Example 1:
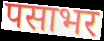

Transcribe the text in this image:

पसाभर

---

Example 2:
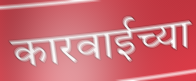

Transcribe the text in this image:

कारवाईच्या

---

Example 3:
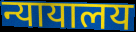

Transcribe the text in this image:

न्यायालय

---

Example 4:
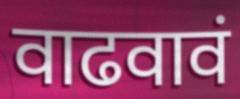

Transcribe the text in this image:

वाढवावं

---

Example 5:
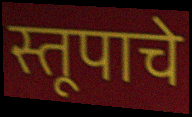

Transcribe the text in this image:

स्तूपाचे